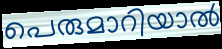
പെരുമാറിയാൽ